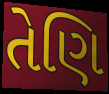
તેણિ